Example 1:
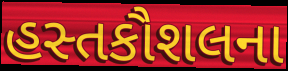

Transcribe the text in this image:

હસ્તકૌશલના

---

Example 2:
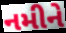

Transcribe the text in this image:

નમીને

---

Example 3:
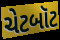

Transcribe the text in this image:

ચેટબૉટ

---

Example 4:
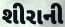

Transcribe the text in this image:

શીરાની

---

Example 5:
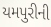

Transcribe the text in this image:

યમપુરીની